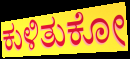
ಕುಳಿತುಕೋ